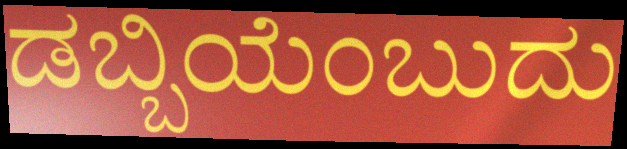
ಡಬ್ಬಿಯೆಂಬುದು